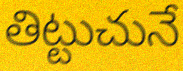
తిట్టుచునే